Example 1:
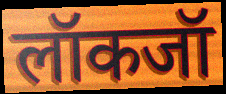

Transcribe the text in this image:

लॉकजॉ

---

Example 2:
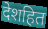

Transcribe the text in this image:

देशहित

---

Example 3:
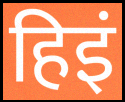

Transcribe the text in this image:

हिइं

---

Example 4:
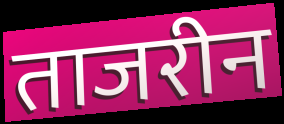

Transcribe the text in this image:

ताजरीन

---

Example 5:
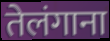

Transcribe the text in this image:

तेलंगाना